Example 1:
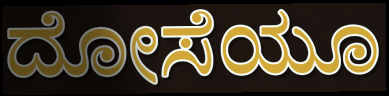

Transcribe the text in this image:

ದೋಸೆಯೂ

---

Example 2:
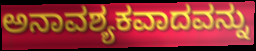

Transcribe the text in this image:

ಅನಾವಶ್ಯಕವಾದವನ್ನು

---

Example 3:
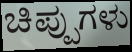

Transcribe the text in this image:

ಚಿಪ್ಪುಗಳು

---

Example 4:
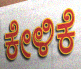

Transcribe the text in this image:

ಕೇಳಿಕೆ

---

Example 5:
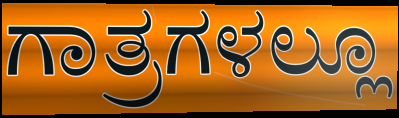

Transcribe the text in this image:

ಗಾತ್ರಗಳಲ್ಲೂ